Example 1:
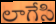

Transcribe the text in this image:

లాగేసి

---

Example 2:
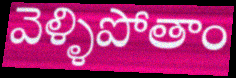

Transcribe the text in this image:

వెళ్ళిపోతాం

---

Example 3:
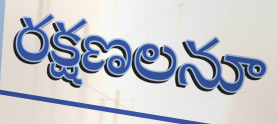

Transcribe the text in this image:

రక్షణలనూ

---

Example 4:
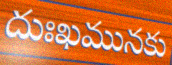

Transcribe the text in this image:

దుఃఖమునకు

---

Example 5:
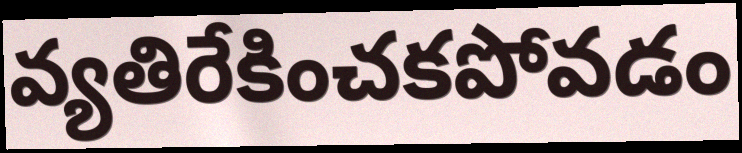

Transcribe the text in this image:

వ్యతిరేకించకపోవడం